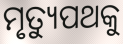
ମୃତ୍ୟୁପଥକୁ